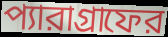
প্যারাগ্রাফের